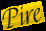
Pire